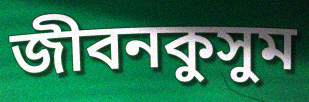
জীবনকুসুম